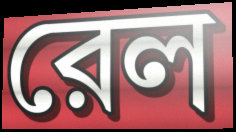
রেল